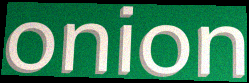
onion